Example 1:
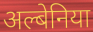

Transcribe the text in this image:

अल्बेनिया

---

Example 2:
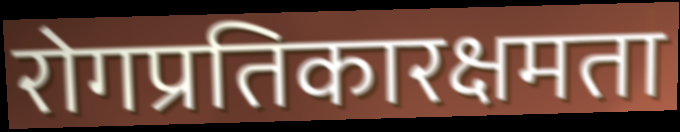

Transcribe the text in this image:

रोगप्रतिकारक्षमता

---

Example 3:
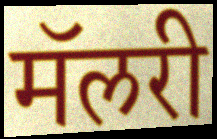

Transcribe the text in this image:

मॅलरी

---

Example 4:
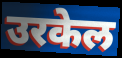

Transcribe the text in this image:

उरकेल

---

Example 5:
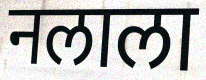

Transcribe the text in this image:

नलाला